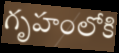
గృహంలోకి